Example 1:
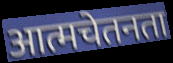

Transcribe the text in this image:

आत्मचेतनता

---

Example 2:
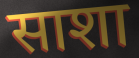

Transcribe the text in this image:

साशा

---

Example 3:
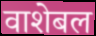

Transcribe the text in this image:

वाशेबल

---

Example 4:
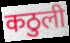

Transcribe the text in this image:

कठुली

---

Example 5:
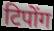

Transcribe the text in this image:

टिपोंग